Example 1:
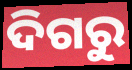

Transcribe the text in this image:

ଦିଗରୁ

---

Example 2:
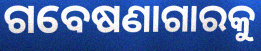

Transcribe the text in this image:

ଗବେଷଣାଗାରକୁ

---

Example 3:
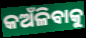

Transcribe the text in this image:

କଅଁଳିବାକୁ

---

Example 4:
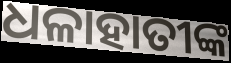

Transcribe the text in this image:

ଧଳାହାତୀଙ୍କ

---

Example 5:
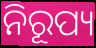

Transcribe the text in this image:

ନିରୂପ୍ୟ